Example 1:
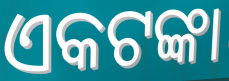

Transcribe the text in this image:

ଏକଟଙ୍କା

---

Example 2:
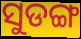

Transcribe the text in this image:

ସୁଡଙ୍ଗ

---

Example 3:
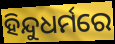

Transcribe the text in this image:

ହିନ୍ଦୁଧର୍ମରେ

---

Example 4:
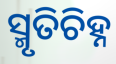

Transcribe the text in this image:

ସ୍ମୃତିଚିହ୍ନ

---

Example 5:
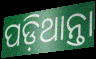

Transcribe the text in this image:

ପଡ଼ିଥାନ୍ତା